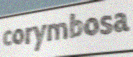
corymbosa